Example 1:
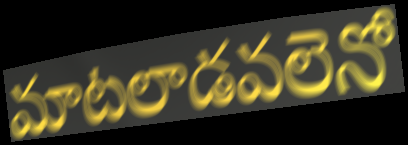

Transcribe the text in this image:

మాటలాడవలెనో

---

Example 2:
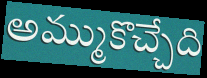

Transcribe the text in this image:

అమ్ముకొచ్చేది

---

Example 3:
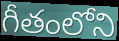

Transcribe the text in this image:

గీతంలోని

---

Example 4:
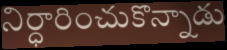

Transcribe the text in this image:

నిర్ధారించుకొన్నాడు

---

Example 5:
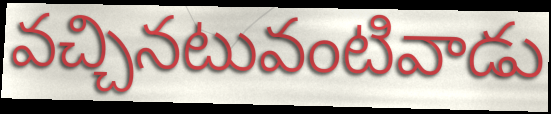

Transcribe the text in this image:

వచ్చినటువంటివాడు